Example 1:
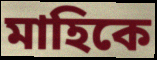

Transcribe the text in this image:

মাহিকে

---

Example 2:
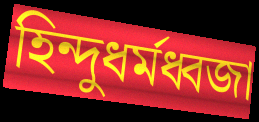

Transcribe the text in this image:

হিন্দুধর্মধ্বজা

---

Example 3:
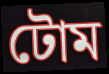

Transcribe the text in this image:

টোম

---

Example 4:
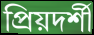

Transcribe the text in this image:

প্রিয়দর্শী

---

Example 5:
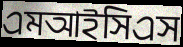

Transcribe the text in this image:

এমআইসিএস